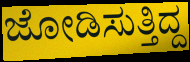
ಜೋಡಿಸುತ್ತಿದ್ದ